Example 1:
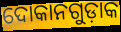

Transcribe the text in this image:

ଦୋକାନଗୁଡ଼ାକ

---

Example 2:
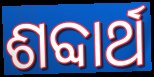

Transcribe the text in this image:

ଶବ୍ଦାର୍ଥ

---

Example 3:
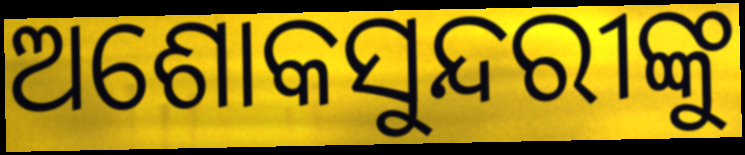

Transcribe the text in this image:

ଅଶୋକସୁନ୍ଦରୀଙ୍କୁ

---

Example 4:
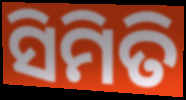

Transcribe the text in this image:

ସିମିତି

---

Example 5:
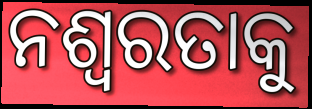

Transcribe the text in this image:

ନଶ୍ବରତାକୁ